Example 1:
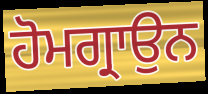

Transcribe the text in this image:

ਹੋਮਗ੍ਰਾਉਨ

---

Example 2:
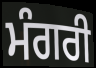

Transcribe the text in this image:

ਮੰਗਰੀ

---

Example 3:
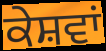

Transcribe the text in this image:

ਕੇਸ਼ਵਾਂ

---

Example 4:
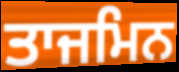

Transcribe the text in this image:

ਤਾਜਮਿਨ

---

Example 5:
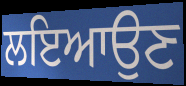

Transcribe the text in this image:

ਲਇਆਉਣ